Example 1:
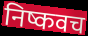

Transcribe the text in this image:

निष्कवच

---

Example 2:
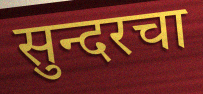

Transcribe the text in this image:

सुन्दरचा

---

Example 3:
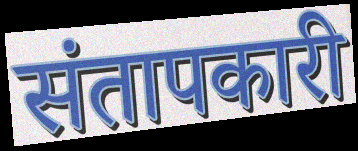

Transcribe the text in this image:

संतापकारी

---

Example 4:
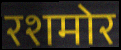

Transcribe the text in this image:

रशमोर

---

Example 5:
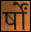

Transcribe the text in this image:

र्षों